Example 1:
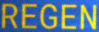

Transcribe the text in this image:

REGEN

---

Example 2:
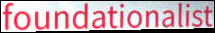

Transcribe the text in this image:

foundationalist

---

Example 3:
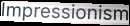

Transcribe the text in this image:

Impressionism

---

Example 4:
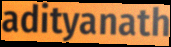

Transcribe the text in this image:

adityanath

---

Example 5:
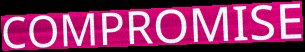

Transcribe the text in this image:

COMPROMISE